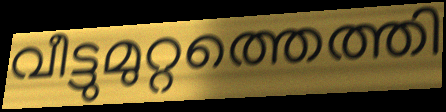
വീട്ടുമുറ്റത്തെത്തി